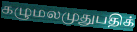
கழுமலமுதுபதிக்